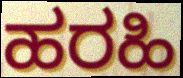
ಹರಹಿ